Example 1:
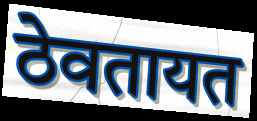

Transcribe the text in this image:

ठेवतायत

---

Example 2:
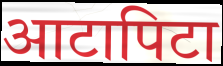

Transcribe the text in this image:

आटापिटा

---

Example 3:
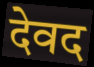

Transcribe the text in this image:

देवद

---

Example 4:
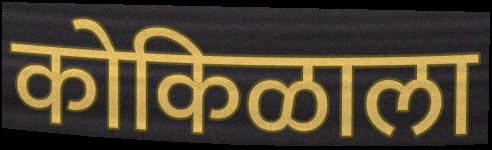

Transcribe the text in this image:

कोकिळाला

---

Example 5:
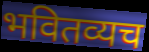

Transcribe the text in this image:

भवितव्यच